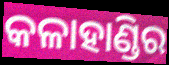
କଳାହାଣ୍ଡିର